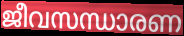
ജീവസന്ധാരണ